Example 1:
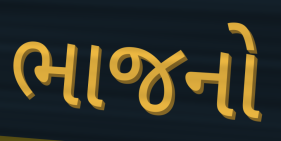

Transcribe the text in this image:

ભાજનો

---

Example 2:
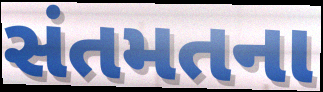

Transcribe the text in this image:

સંતમતના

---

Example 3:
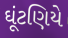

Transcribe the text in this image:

ઘૂંટણિયે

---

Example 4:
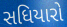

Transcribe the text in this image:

સધિયારો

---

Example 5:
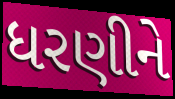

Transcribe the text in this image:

ધરણીને